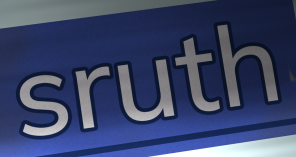
sruth